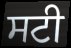
ਸਟੀ